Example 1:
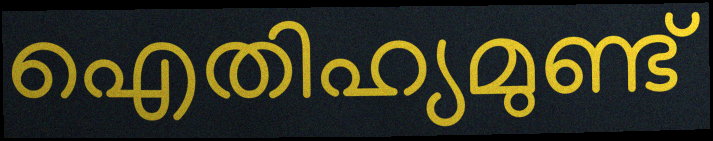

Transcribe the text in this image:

ഐതിഹ്യമുണ്ട്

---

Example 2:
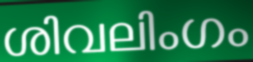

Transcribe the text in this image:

ശിവലിംഗം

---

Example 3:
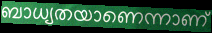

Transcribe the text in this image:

ബാധ്യതയാണെന്നാണ്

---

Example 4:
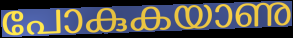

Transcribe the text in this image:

പോകുകയാണു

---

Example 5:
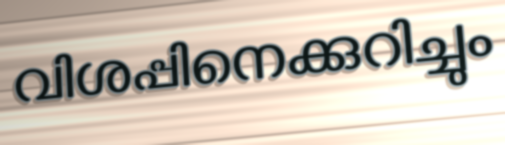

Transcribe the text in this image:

വിശപ്പിനെക്കുറിച്ചും